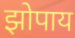
झोपाय